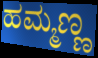
ಹಮ್ಮಣ್ಣ